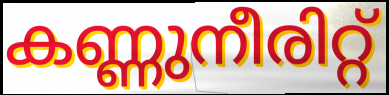
കണ്ണുനീരിറ്റ്